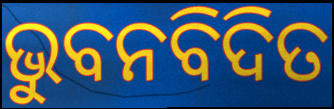
ଭୁବନବିଦିତ